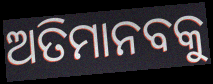
ଅତିମାନବକୁ